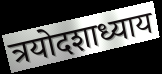
त्रयोदशाध्याय